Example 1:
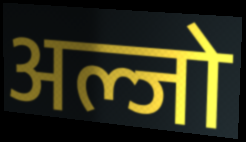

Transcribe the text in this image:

अल्जो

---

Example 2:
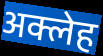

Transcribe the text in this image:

अक्लेह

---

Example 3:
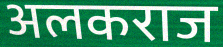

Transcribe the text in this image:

अलकराज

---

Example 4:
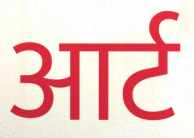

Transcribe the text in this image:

आर्ट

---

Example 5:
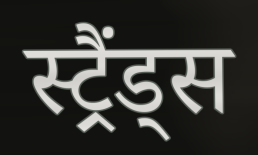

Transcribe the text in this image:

स्ट्रैंड्स